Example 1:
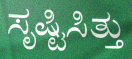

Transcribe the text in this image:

ಸೃಷ್ಟಿಸಿತ್ತು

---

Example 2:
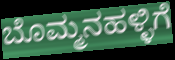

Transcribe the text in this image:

ಬೊಮ್ಮನಹಳ್ಳಿಗೆ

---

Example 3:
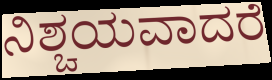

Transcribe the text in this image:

ನಿಶ್ಚಯವಾದರೆ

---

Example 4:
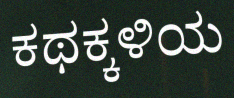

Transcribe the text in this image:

ಕಥಕ್ಕಳಿಯ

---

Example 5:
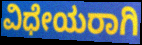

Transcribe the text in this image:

ವಿಧೇಯರಾಗಿ